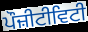
ਪੌਜ਼ੀਟੀਵਿਟੀ